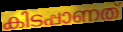
കിടപ്പാണത്